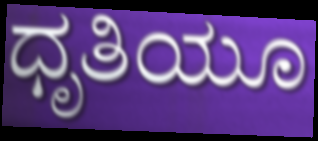
ಧೃತಿಯೂ